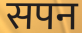
सपन